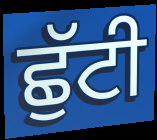
ਛੁੱਟੀ